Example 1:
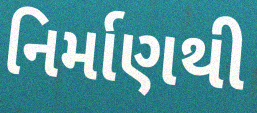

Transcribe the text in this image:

નિર્માણથી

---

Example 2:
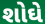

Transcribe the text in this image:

શોઘે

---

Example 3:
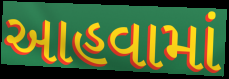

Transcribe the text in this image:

આહવામાં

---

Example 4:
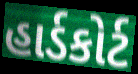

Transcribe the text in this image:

હાર્ડકોર્ટ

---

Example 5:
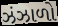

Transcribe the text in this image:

ઝંઝાળો